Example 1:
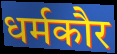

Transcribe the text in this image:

धर्मकौर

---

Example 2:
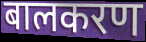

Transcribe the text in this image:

बालकरण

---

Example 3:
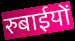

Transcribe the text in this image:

रुबाईयों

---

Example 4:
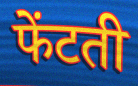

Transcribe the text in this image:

फेंटती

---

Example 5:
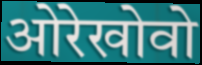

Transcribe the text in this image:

ओरेखोवो